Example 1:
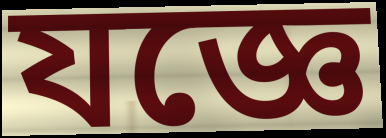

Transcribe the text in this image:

যজ্ঞে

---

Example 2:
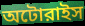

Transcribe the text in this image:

অটোরাইস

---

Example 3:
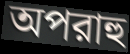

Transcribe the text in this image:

অপরাহু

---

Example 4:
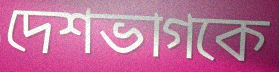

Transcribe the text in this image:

দেশভাগকে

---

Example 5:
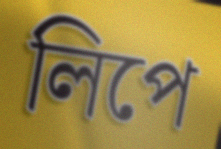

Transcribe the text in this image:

লিপে